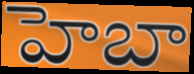
హెబా